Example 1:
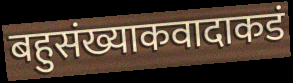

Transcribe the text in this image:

बहुसंख्याकवादाकडं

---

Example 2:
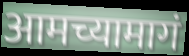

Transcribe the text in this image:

आमच्यामागं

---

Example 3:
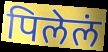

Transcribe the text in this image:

पिलेलं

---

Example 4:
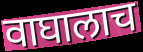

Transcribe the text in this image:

वाघालाच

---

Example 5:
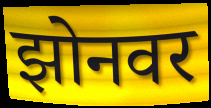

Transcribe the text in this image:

झोनवर